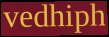
vedhiph